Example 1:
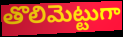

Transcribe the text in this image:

తొలిమెట్టుగా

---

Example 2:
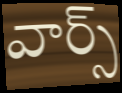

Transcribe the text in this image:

వార్స్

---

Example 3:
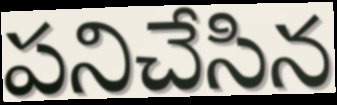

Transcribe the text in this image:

పనిచేసిన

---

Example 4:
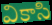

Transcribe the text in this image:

వికాసి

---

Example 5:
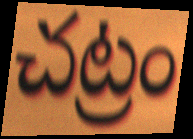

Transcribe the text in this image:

చట్రం